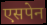
एसपेन